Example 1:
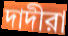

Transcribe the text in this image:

দাদীরা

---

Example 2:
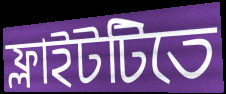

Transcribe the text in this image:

ফ্লাইটটিতে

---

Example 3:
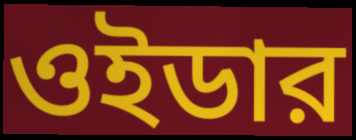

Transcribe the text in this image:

ওইডার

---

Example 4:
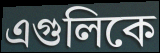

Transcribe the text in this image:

এগুলিকে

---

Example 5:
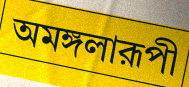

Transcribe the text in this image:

অমঙ্গলারূপী